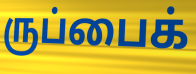
ருப்பைக்